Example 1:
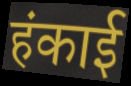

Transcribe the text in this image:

हंकाई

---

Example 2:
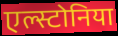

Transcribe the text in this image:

एल्स्टोनिया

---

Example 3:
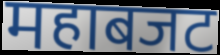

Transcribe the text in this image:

महाबजट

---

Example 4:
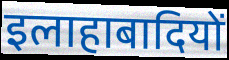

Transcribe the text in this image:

इलाहाबादियों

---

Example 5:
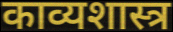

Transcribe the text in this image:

काव्यशास्त्र